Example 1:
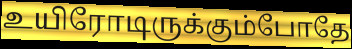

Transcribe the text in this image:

உயிரோடிருக்கும்போதே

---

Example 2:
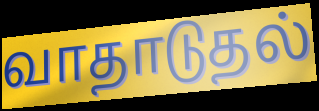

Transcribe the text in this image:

வாதாடுதல்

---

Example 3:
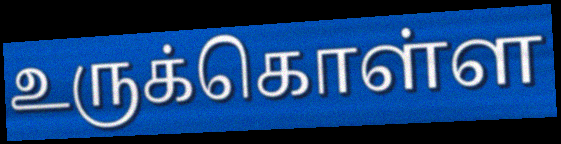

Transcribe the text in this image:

உருக்கொள்ள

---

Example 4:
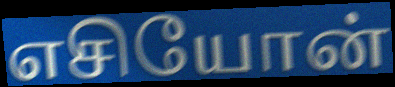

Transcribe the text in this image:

எசியோன்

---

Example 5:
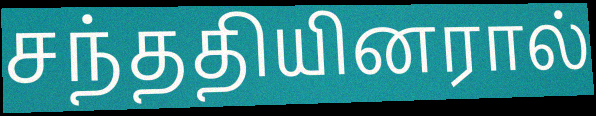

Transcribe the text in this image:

சந்ததியினரால்